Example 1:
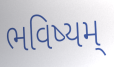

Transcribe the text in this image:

ભવિષ્યમ્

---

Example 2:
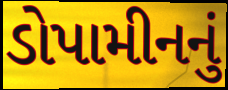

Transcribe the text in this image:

ડોપામીનનું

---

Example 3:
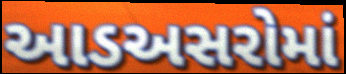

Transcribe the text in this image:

આડઅસરોમાં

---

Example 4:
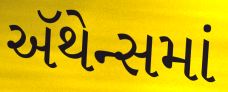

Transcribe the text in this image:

ઍથેન્સમાં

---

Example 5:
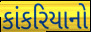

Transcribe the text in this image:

કાંકરિયાનો